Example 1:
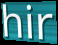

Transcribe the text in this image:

hir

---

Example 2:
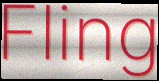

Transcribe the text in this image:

Fling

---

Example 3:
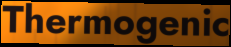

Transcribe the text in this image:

Thermogenic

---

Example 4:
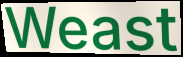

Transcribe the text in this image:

Weast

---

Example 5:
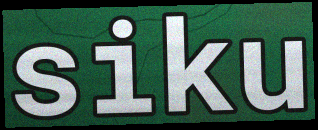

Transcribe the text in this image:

siku